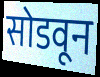
सोडवून